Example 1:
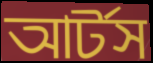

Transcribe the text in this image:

আর্টস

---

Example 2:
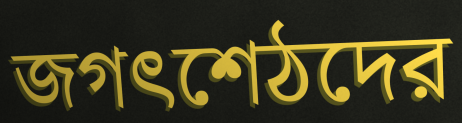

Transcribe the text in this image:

জগৎশেঠদের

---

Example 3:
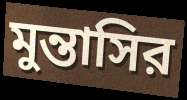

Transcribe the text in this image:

মুন্তাসির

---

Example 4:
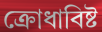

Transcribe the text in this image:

ক্রোধাবিষ্ট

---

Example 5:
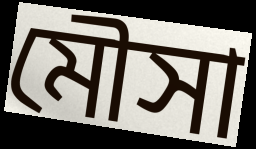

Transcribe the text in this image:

মৌসা